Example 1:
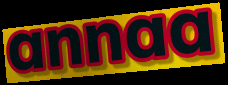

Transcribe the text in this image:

annaa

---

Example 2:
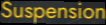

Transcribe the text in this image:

Suspension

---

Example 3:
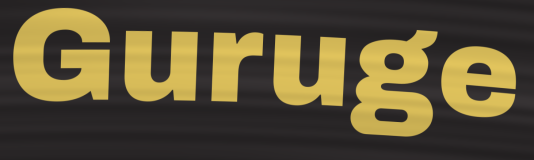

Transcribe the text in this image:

Guruge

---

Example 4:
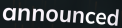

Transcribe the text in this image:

announced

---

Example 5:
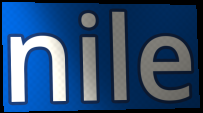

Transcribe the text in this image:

nile